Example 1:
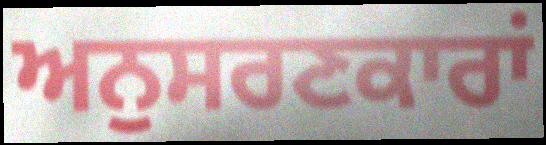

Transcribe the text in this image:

ਅਨੁਸਰਣਕਾਰਾਂ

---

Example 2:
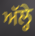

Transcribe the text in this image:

ਅੱਲ੍ਹੇ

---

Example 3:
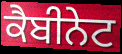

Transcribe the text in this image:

ਕੈਬੀਨੇਟ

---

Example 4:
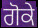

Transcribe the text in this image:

ਗੋਕੇ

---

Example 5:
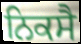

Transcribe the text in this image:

ਨਿਕਸੈ